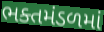
ભક્તમંડળમાં